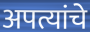
अपत्यांचे